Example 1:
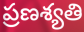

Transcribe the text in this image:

ప్రణశ్యతి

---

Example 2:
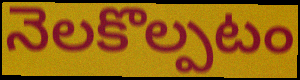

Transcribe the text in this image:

నెలకొల్పటం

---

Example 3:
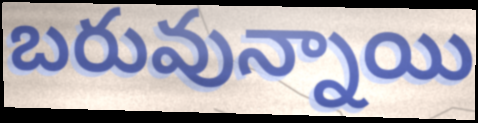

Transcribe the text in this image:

బరువున్నాయి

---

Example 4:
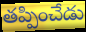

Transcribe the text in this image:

తప్పించేడు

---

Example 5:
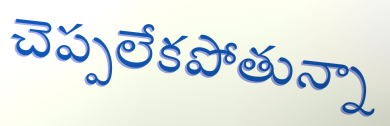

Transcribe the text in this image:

చెప్పలేకపోతున్నా